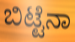
ಬಿಟ್ಟೆನಾ